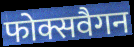
फोक्सवैगन